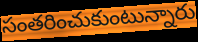
సంతరించుకుంటున్నారు